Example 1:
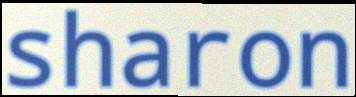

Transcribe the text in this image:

sharon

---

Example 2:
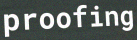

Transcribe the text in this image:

proofing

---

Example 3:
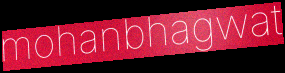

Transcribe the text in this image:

mohanbhagwat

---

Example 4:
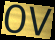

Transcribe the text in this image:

OV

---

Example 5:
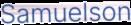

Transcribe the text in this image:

Samuelson